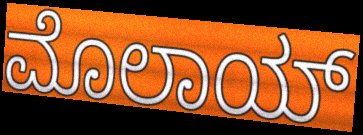
ಮೊಲಾಯ್